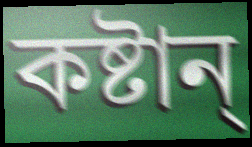
কষ্টান্